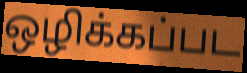
ஒழிக்கப்பட